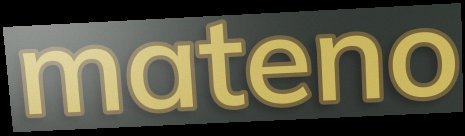
mateno